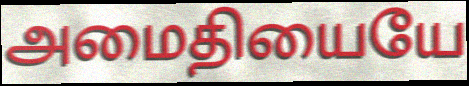
அமைதியையே